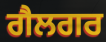
ਗੈਲਗਰ